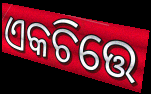
ଏକଚିତ୍ତେ